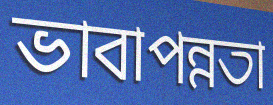
ভাবাপন্নতা